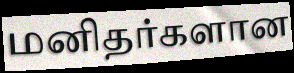
மனிதர்களான